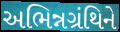
અભિન્નગ્રંથિને